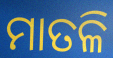
ମାତଳି